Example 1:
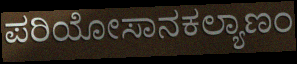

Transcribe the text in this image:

ಪರಿಯೋಸಾನಕಲ್ಯಾಣಂ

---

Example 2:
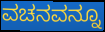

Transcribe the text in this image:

ವಚನವನ್ನೂ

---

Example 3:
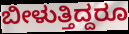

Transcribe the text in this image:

ಬೀಳುತ್ತಿದ್ದರೂ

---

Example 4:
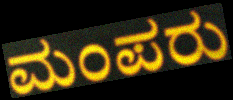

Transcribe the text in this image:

ಮಂಪರು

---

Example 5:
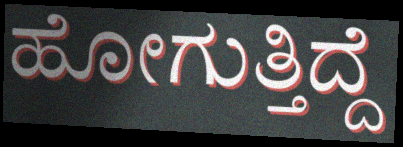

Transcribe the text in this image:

ಹೋಗುತ್ತಿದ್ದೆ